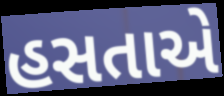
હસતાએ